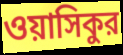
ওয়াসিকুর